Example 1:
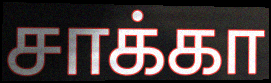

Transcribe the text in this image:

சாக்கா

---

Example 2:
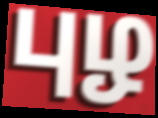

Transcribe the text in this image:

புழ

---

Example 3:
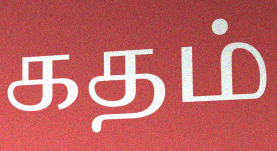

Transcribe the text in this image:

கதம்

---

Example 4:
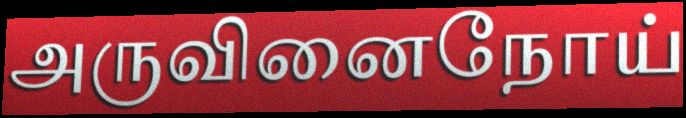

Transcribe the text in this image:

அருவினைநோய்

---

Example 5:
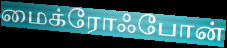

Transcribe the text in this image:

மைக்ரோஃபோன்